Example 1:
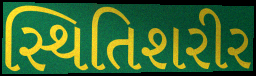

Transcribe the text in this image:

સ્થિતિશરીર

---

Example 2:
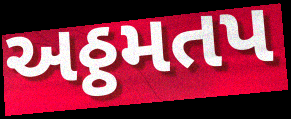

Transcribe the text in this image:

અઠ્ઠમતપ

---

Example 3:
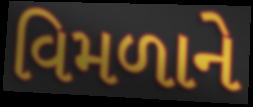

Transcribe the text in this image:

વિમળાને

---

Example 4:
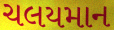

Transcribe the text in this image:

ચલયમાન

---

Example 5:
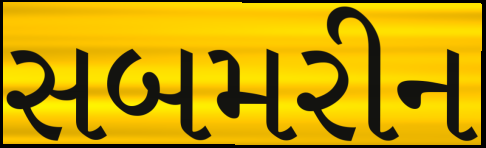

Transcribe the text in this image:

સબમરીન